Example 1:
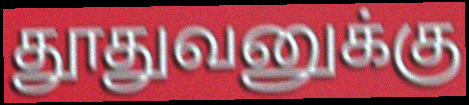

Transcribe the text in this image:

தூதுவனுக்கு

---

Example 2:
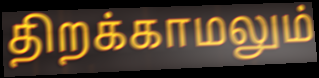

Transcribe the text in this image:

திறக்காமலும்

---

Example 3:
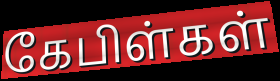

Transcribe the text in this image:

கேபிள்கள்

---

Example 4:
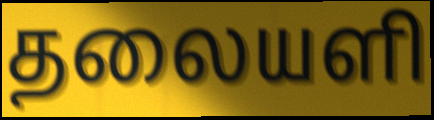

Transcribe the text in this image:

தலையளி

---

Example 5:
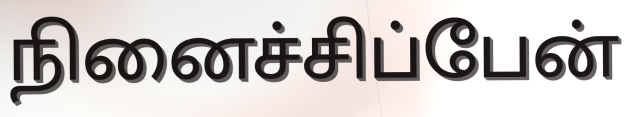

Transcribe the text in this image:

நினைச்சிப்பேன்